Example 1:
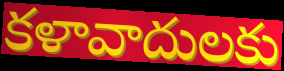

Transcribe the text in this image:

కళావాదులకు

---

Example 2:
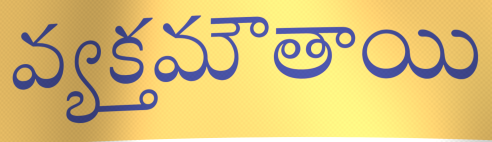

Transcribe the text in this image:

వ్యక్తమౌతాయి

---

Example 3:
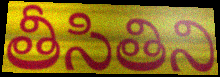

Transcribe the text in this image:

తీసితిని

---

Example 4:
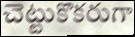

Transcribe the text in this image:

చెట్టుకొకరుగా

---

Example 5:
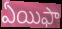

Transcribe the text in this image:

ఏయిఫా